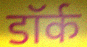
डॉर्क